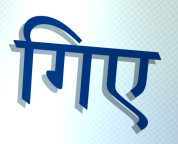
गिए